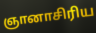
ஞானாசிரிய